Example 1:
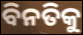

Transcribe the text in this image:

ବିନତିକୁ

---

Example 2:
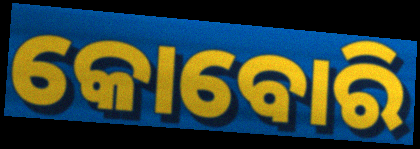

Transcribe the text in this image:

କୋବୋରି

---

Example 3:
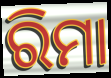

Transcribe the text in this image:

ରିମା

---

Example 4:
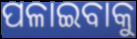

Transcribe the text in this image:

ପଳାଇବାକୁ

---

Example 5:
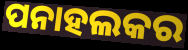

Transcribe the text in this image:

ପନାହଲକର